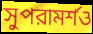
সুপরামর্শও